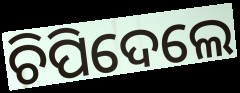
ଚିପିଦେଲେ